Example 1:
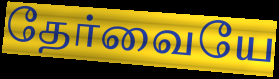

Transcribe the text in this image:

தேர்வையே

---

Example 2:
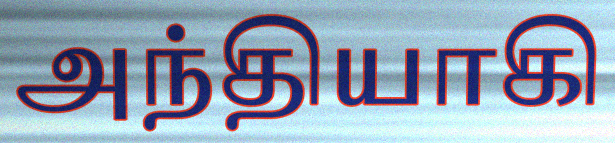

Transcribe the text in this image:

அந்தியாகி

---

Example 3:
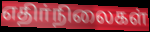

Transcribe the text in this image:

எதிர்நிலைகள்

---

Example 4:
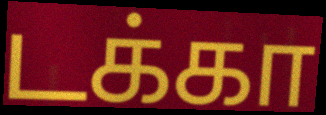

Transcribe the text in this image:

டக்கா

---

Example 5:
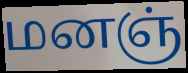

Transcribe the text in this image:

மனஞ்